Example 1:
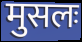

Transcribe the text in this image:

मुसलः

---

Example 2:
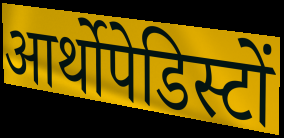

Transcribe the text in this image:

आर्थोपेडिस्टों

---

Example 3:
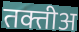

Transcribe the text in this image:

तक्तीअ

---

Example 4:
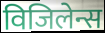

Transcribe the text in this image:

विजिलेन्स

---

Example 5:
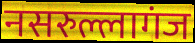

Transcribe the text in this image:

नसरुल्लागंज